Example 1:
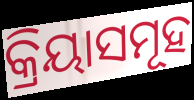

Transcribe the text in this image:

କ୍ରିୟାସମୂହ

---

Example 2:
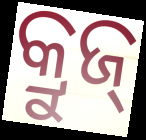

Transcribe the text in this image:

କ୍ରୁଜ୍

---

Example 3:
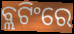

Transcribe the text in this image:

ବ୍ଲଟିଂରେ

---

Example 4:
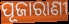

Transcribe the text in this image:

ପୂଜାରାଣୀ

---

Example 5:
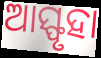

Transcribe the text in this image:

ଆସ୍ଫୃହା